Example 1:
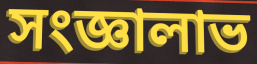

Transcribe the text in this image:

সংজ্ঞালাভ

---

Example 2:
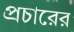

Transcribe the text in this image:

প্রচারের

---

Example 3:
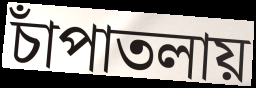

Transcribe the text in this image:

চাঁপাতলায়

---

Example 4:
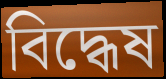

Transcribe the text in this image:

বিদ্ধেষ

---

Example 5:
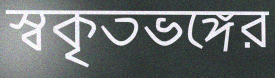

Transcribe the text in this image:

স্বকৃতভঙ্গের